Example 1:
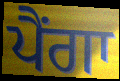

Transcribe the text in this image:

ਪੈਂਗਾ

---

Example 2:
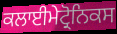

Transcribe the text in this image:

ਕਲਾਈਮੇਟ੍ਰੋਨਿਕਸ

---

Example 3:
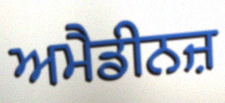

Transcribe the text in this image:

ਅਮੈਡੀਨਜ਼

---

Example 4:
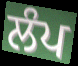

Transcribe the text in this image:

ਲੰਪ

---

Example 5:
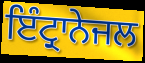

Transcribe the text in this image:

ਇੰਟ੍ਰਾਨੇਜਲ